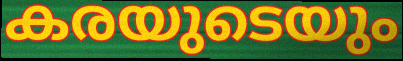
കരയുടെയും